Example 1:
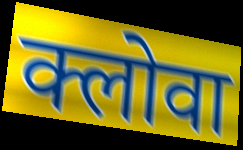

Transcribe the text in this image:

क्लोवा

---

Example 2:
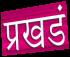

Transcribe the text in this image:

प्रखडं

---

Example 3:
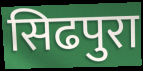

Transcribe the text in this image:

सिढपुरा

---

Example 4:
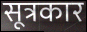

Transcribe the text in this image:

सूत्रकार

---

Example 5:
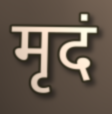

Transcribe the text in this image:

मृदं